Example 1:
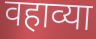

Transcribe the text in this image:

वहाव्या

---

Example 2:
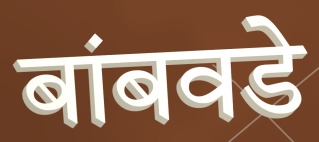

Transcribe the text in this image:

बांबवडे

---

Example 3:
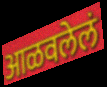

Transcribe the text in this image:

आळवलेलं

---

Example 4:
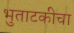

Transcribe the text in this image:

भुताटकीचा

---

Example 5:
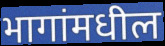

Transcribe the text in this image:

भागांमधील